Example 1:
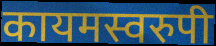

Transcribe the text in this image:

कायमस्वरुपी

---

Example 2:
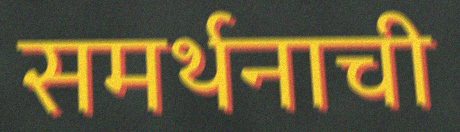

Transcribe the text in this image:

समर्थनाची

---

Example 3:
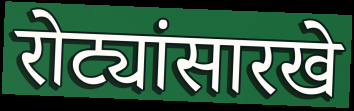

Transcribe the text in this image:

रोट्यांसारखे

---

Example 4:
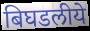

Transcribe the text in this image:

बिघडलीये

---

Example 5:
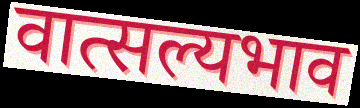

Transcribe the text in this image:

वात्सल्यभाव